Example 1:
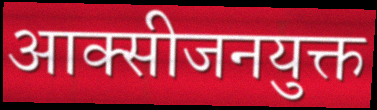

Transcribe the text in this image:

आक्सीजनयुक्त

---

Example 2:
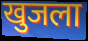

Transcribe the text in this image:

खुजला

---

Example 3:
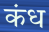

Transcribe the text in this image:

कंध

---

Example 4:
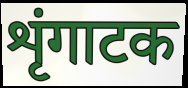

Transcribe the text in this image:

शृंगाटक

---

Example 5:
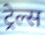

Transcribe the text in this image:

ट्रेल्स